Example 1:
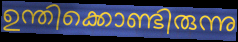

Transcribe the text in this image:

ഉന്തിക്കൊണ്ടിരുന്നു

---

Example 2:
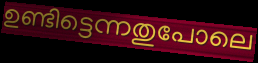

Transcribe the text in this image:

ഉണ്ടിട്ടെന്നതുപോലെ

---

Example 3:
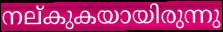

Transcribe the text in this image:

നല്കുകയായിരുന്നു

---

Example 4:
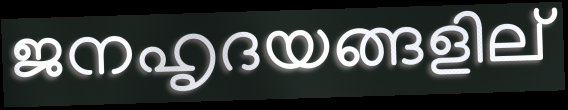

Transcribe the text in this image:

ജനഹൃദയങ്ങളില്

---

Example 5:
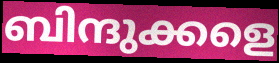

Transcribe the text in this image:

ബിന്ദുക്കളെ